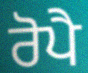
ਰੋਪੈ